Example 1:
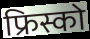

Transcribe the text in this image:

फ्रिस्को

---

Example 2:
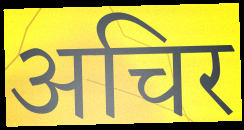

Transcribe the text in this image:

अचिर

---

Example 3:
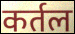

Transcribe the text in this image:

कर्तल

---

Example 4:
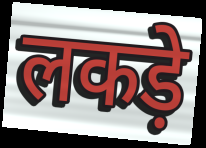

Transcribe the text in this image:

लकड़े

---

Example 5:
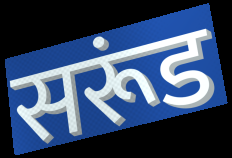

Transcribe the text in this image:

सरूंड